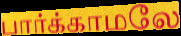
பார்க்காமலே